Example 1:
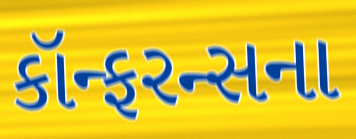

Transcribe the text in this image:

કૉન્ફરન્સના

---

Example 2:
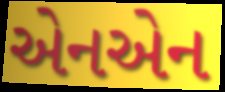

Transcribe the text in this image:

એનએન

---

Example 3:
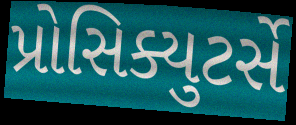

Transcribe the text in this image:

પ્રોસિક્યુટર્સે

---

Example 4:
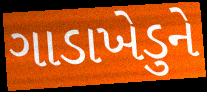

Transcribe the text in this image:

ગાડાખેડુને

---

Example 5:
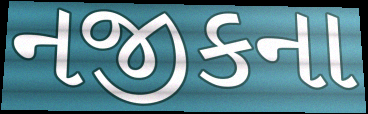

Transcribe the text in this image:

નજીકના